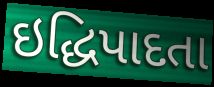
ઇદ્ધિપાદતા